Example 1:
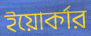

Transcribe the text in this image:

ইয়োর্কার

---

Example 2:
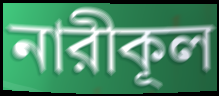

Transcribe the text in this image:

নারীকূল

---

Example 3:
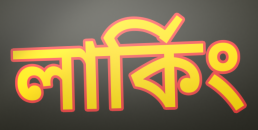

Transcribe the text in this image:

লার্কিং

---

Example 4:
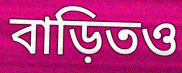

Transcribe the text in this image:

বাড়িতও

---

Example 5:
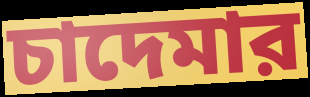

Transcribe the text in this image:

চাদেমার